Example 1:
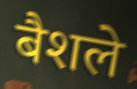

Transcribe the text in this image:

बैशले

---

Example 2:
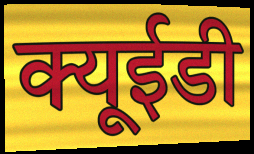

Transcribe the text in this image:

क्यूईडी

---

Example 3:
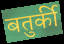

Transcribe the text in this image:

बतुर्की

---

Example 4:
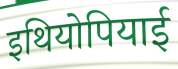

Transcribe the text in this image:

इथियोपियाई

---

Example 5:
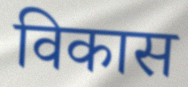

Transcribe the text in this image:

विकास